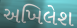
અખિલેશ